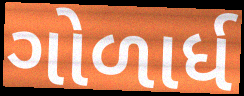
ગોળાર્ધ